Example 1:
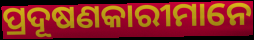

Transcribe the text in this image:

ପ୍ରଦୂଷଣକାରୀମାନେ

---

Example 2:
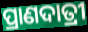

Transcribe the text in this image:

ପ୍ରାଣଦାତ୍ରୀ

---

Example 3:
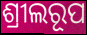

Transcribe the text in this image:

ଶ୍ରୀଲରୂପ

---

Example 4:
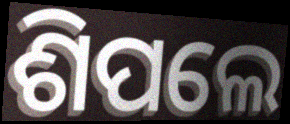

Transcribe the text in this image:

ଶିପଲେ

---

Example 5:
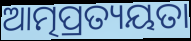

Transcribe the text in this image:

ଆତ୍ମପ୍ରତ୍ୟୟତା